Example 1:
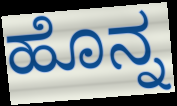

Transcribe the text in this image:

ಹೊನ್ನ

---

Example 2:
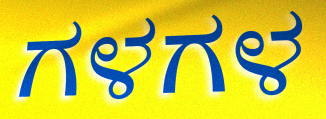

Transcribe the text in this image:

ಗಳಗಳ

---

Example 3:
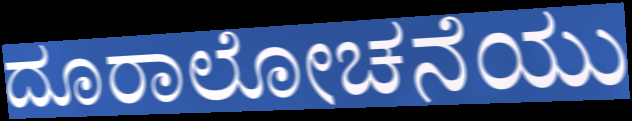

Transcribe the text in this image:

ದೂರಾಲೋಚನೆಯು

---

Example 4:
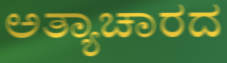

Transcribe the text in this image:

ಅತ್ಯಾಚಾರದ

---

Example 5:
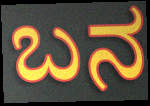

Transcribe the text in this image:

ಬನ